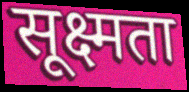
सूक्ष्मता